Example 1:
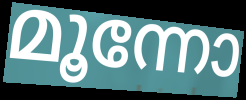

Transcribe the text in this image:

മൂന്നോ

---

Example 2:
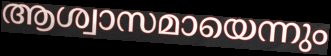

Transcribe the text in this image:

ആശ്വാസമായെന്നും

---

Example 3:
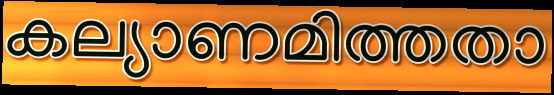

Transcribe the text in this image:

കല്യാണമിത്തതാ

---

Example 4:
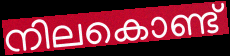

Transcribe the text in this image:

നിലകൊണ്ട്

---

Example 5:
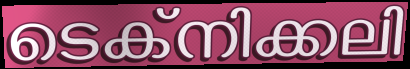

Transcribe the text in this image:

ടെക്‌നിക്കലി